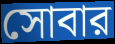
সোবার